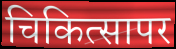
चिकित्सापर